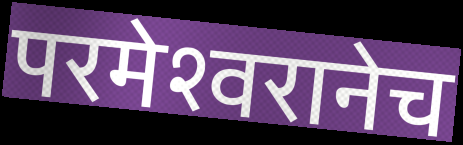
परमेश्वरानेच